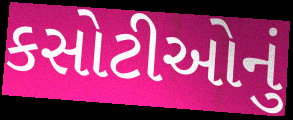
કસોટીઓનું